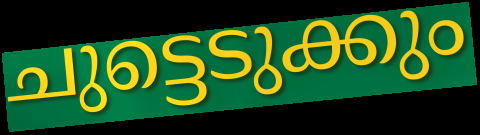
ചുട്ടെടുക്കും